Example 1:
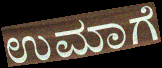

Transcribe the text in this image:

ಉಮಾಗೆ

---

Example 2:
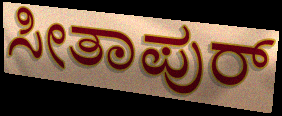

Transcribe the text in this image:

ಸೀತಾಪುರ್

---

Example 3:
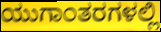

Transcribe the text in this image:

ಯುಗಾಂತರಗಳಲ್ಲಿ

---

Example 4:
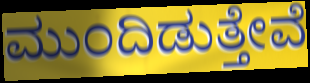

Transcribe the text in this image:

ಮುಂದಿಡುತ್ತೇವೆ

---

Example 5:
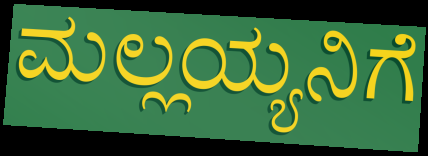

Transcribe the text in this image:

ಮಲ್ಲಯ್ಯನಿಗೆ